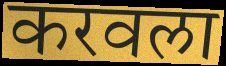
करवला